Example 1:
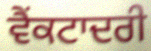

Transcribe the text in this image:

ਵੈਂਕਟਾਦਰੀ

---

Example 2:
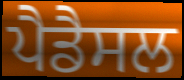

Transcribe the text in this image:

ਪੈਡੈਸਲ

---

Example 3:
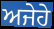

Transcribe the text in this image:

ਅਜੇਹੇ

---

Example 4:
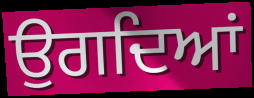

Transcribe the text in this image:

ਉਗਦਿਆਂ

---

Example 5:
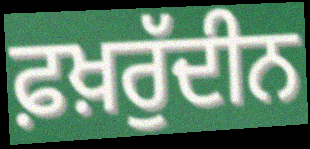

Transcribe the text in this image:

ਫ਼ਖ਼ਰੁੱਦੀਨ